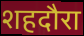
शहदौरा